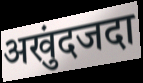
अखुंदजदा